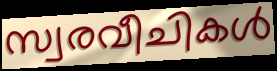
സ്വരവീചികൾ